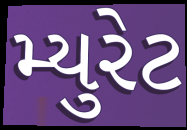
મ્યુરેટ